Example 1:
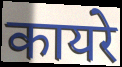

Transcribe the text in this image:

कायरे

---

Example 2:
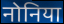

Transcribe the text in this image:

नोनिया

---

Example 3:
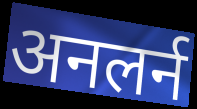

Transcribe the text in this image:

अनलर्न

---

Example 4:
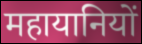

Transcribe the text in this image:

महायानियों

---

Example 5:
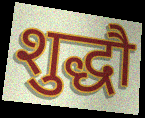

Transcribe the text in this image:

शुद्धौ